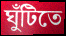
ঘুঁটিতে